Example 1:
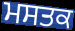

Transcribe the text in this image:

ਮਸਤਕ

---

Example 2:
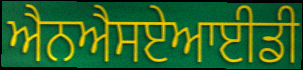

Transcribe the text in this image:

ਐਨਐਸਏਆਈਡੀ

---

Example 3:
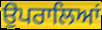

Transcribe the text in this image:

ਉਪਰਾਲਿਆਂ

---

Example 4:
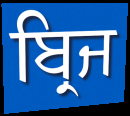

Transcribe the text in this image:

ਬ੍ਰਿਜ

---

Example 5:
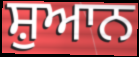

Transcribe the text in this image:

ਸ਼ੁਆਨ